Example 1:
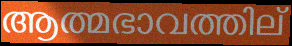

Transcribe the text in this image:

ആത്മഭാവത്തില്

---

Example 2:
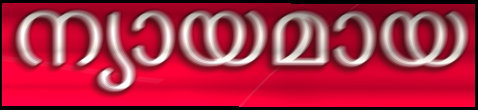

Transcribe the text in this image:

ന്യായമായ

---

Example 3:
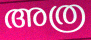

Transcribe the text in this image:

അത്ര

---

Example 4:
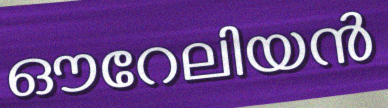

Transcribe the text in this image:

ഔറേലിയൻ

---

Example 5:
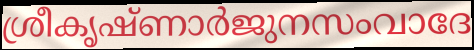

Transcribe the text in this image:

ശ്രീകൃഷ്ണാർജുനസംവാദേ